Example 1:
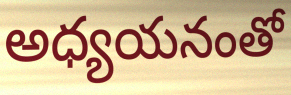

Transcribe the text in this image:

అధ్యయనంతో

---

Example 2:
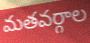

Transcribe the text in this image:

మతవర్గాల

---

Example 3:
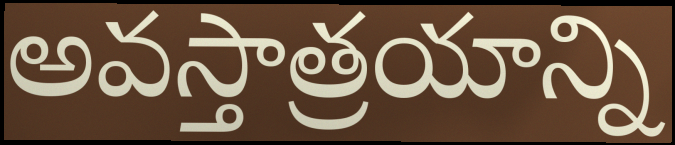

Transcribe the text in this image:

అవస్తాత్రయాన్ని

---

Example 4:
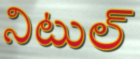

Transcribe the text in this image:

నిటుల్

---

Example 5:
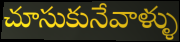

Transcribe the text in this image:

చూసుకునేవాళ్ళు